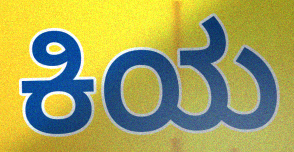
ಕಿಯ